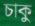
চাকু